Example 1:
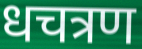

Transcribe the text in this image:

धचत्रण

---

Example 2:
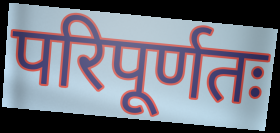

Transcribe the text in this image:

परिपूर्णतः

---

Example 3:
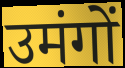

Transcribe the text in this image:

उमंगों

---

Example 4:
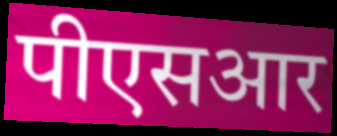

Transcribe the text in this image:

पीएसआर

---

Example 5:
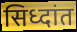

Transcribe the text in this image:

सिध्दांत